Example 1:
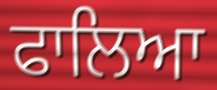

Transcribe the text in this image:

ਫਾਲਿਆ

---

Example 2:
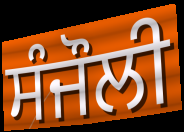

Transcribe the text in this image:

ਸੰਜੌਲੀ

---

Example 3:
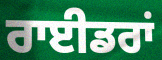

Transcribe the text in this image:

ਰਾਈਡਰਾਂ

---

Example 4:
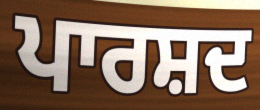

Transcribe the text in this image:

ਪਾਰਸ਼ਦ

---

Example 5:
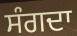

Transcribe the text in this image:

ਸੰਗਦਾ